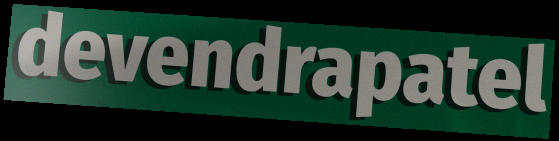
devendrapatel